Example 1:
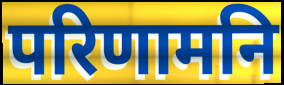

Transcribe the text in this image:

परिणामनि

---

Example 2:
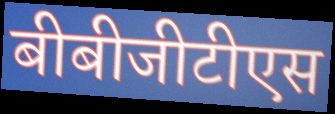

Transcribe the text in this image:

बीबीजीटीएस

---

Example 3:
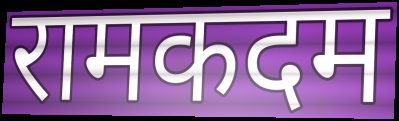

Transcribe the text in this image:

रामकदम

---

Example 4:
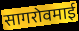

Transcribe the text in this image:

सागरोवमाई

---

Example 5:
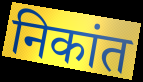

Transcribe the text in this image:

निकांत